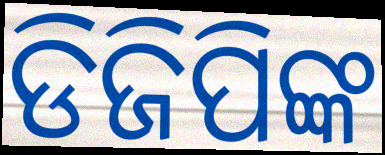
ଡିଜିପିଙ୍କ